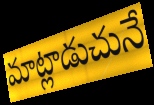
మాట్లాడుచునే